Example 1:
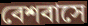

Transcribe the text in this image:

বেশবাসে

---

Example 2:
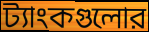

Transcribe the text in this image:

ট্যাংকগুলোর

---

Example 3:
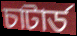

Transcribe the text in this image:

চাটার্ড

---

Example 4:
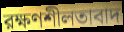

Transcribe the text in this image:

রক্ষণশীলতাবাদ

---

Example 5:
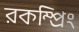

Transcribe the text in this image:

রকম্প্রিং